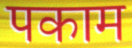
पकाम